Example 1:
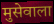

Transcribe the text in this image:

मुसेवाला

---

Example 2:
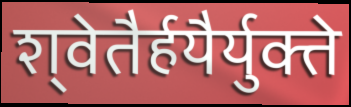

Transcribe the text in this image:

श्वेतैर्हयैर्युक्ते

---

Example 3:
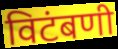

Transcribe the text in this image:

विटंबणी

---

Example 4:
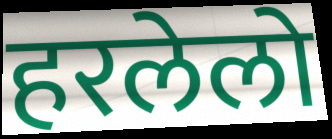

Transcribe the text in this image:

हरलेलो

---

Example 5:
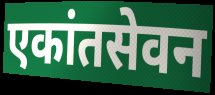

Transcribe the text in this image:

एकांतसेवन